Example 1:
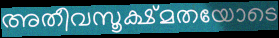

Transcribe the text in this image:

അതീവസൂക്ഷ്മതയോടെ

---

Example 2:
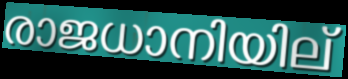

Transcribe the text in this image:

രാജധാനിയില്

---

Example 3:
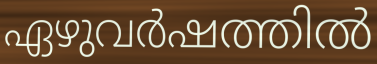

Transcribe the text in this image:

ഏഴുവർഷത്തിൽ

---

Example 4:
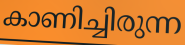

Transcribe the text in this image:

കാണിച്ചിരുന്ന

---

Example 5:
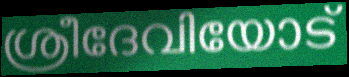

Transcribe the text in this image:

ശ്രീദേവിയോട്